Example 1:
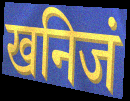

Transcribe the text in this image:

खनिजं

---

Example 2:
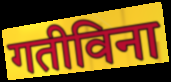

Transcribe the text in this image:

गतीविना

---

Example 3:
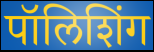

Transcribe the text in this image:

पॉलिशिंग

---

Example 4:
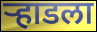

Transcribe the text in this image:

ऱ्हाडला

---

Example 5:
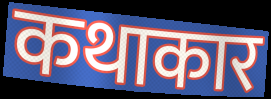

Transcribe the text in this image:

कथाकार